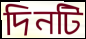
দিনটি